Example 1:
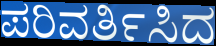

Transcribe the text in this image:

ಪರಿವರ್ತಿಸಿದ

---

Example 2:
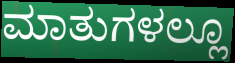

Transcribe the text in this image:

ಮಾತುಗಳಲ್ಲೂ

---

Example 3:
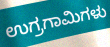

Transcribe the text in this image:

ಉಗ್ರಗಾಮಿಗಳು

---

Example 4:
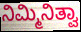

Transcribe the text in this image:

ನಿಮ್ಮಿನಿತ್ವಾ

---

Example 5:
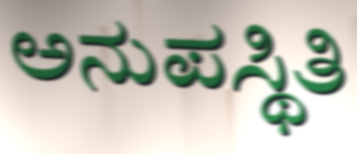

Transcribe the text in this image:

ಅನುಪಸ್ಥಿತಿ